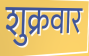
शुक्रवार